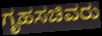
ಗೃಹಸಚಿವರು